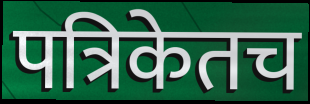
पत्रिकेतच